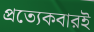
প্রত্যেকবারই